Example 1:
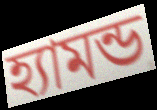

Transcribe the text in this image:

হ্যামন্ড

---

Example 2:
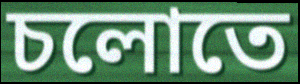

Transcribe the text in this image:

চলোতে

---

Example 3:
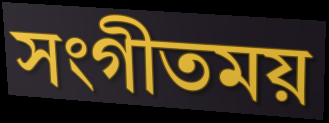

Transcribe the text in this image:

সংগীতময়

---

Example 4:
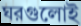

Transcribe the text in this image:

ঘরগুলোই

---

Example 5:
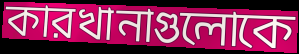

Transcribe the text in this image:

কারখানাগুলোকে